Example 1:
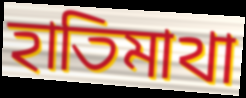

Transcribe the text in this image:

হাতিমাথা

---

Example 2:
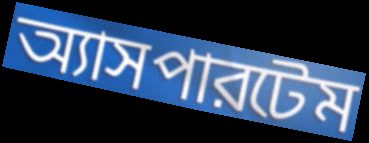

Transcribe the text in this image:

অ্যাসপারটেম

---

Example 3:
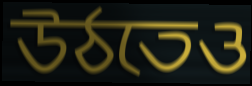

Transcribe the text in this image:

উঠতেও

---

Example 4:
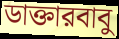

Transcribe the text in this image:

ডাক্তারবাবু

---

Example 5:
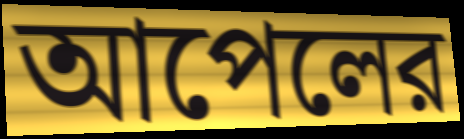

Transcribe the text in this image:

আপেলের